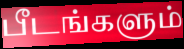
பீடங்களும்